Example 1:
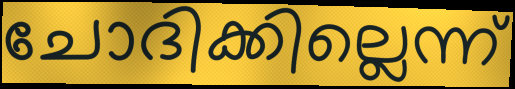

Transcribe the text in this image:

ചോദിക്കില്ലെന്ന്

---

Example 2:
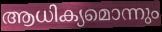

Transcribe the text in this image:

ആധിക്യമൊന്നും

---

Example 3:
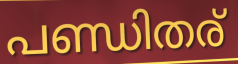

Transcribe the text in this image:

പണ്ഡിതര്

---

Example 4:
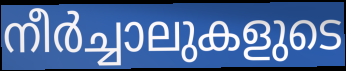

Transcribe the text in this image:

നീർച്ചാലുകളുടെ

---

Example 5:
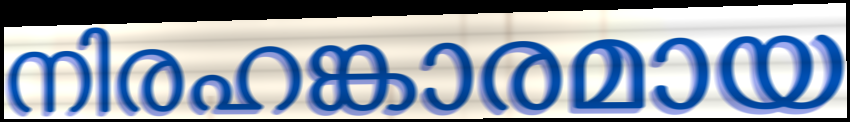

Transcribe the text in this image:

നിരഹങ്കാരമായ